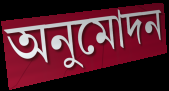
অনুমোদন